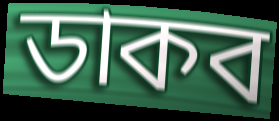
ডাকব